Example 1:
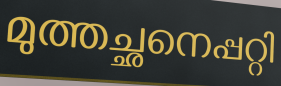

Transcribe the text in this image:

മുത്തച്ഛനെപ്പറ്റി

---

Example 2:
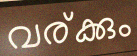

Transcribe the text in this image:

വര്ക്കും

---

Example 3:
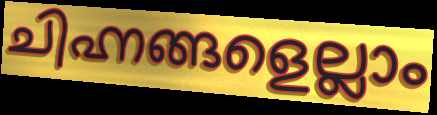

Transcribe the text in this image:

ചിഹ്നങ്ങളെല്ലാം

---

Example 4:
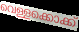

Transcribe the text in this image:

വെള്ളക്കൊക്ക്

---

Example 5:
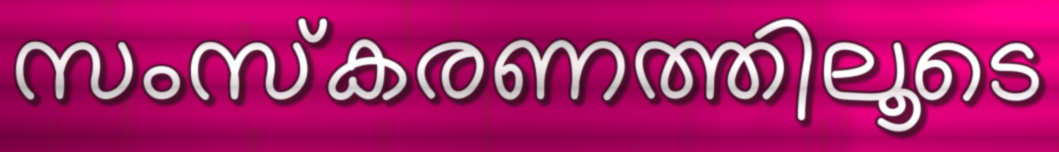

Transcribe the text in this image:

സംസ്കരണത്തിലൂടെ